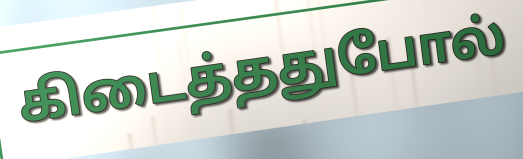
கிடைத்ததுபோல்